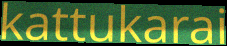
kattukarai